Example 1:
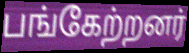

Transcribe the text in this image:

பங்கேற்றனர்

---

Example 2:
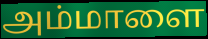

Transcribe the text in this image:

அம்மாளை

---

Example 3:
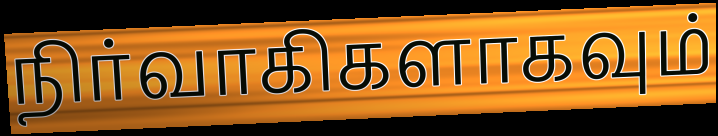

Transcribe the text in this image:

நிர்வாகிகளாகவும்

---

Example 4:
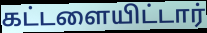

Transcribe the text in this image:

கட்டளையிட்டார்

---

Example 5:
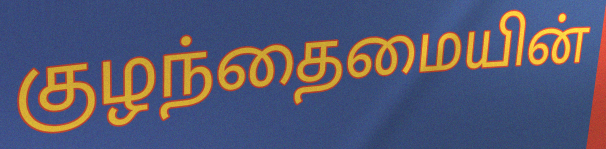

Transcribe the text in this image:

குழந்தைமையின்